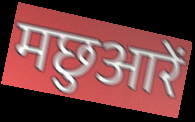
मछुआरें